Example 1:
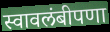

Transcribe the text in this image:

स्वावलंबीपणा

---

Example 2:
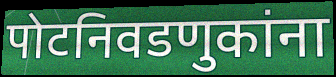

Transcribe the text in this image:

पोटनिवडणुकांना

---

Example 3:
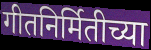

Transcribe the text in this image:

गीतनिर्मितीच्या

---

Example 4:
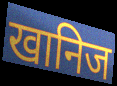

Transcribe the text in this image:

खानिज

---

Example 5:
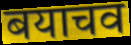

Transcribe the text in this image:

बयाचव